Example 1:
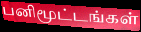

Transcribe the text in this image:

பனிமூட்டங்கள்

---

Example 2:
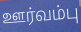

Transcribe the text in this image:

ஊர்வம்பு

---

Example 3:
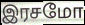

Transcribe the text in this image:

இரசமோ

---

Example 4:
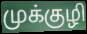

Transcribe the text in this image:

முக்குழி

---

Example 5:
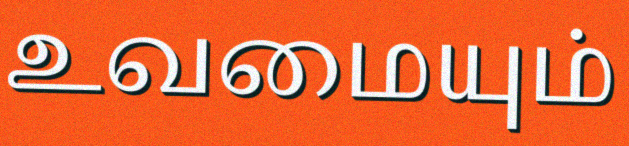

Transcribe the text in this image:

உவமையும்